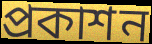
প্ৰকাশন